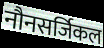
नौनसर्जिकल